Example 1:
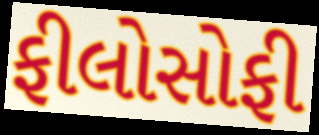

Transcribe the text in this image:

ફીલોસોફી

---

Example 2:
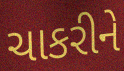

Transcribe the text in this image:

ચાકરીને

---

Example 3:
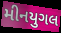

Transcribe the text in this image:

મીનયુગલ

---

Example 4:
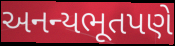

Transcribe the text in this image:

અનન્યભૂતપણે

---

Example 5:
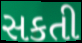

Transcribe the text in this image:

સકતી